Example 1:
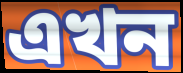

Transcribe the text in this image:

এখন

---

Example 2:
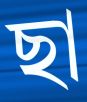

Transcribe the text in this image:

ছা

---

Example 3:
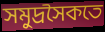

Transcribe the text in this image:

সমুদ্রসৈকতে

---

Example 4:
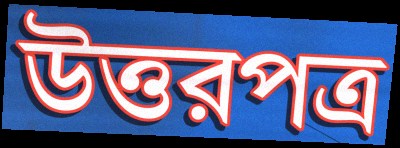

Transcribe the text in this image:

উত্তরপত্র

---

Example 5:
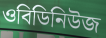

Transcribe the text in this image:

ওবিডিনিউজ